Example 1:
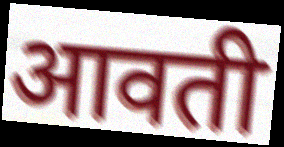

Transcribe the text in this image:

आवती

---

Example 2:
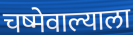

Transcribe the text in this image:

चष्मेवाल्याला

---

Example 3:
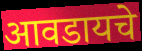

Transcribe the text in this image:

आवडायचे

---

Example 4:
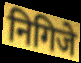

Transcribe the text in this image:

निगिजे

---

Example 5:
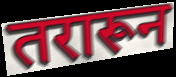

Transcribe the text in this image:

तरारून